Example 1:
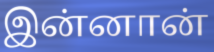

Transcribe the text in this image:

இன்னான்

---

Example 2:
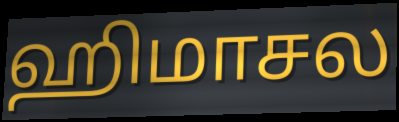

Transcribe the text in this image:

ஹிமாசல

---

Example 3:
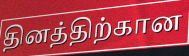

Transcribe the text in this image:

தினத்திற்கான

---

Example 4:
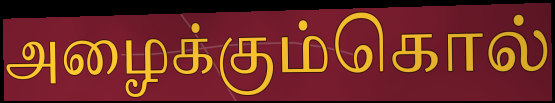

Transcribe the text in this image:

அழைக்கும்கொல்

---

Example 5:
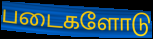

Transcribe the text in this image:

படைகளோடு